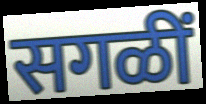
सगळीं